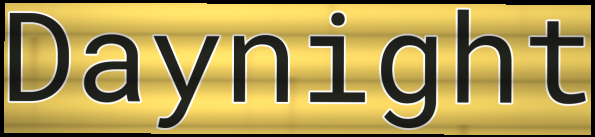
Daynight